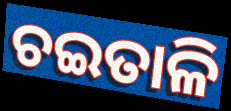
ଚଇତାଳି